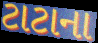
ટાટાના